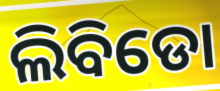
ଲିବିଡୋ